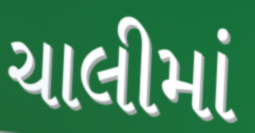
ચાલીમાં